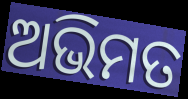
ଅଭିମତ